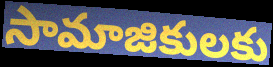
సామాజికులకు